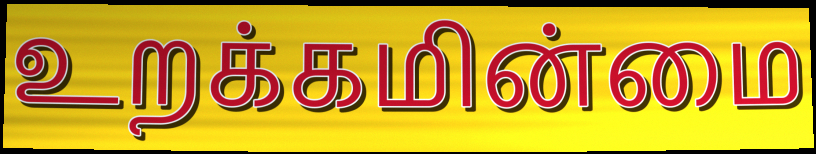
உறக்கமின்மை